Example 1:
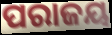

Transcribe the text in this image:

ପରାଜୟ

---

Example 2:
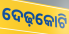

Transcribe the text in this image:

ଦେଢ଼କୋଟି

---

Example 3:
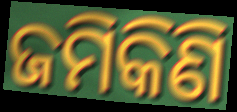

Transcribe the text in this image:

ଜମିକିଣି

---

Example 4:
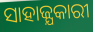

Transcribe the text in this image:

ସାହାଜ୍ଯକାରୀ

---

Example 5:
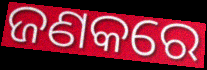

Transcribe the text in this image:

ଜଣକରେ